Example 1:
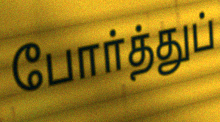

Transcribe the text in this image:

போர்த்துப்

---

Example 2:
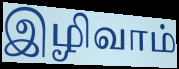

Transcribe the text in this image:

இழிவாம்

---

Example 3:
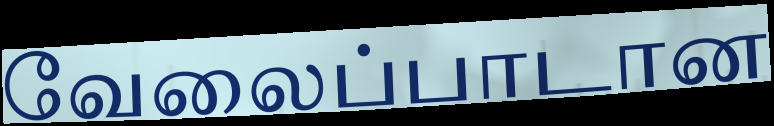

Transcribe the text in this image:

வேலைப்பாடான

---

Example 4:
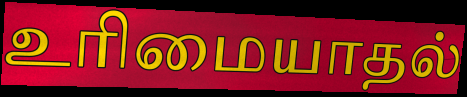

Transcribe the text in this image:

உரிமையாதல்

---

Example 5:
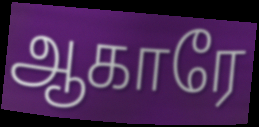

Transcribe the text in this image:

ஆகாரே